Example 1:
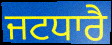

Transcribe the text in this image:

ਜਟਧਾਰੈ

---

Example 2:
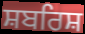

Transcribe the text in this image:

ਸ਼ਬਰਿਸ਼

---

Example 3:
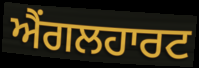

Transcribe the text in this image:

ਐਂਗਲਹਾਰਟ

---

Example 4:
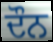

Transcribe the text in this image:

ਦੌਨ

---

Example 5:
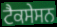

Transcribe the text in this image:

ਟੈਕਸੇਸਨ